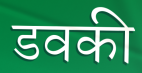
डवकी